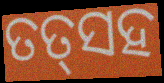
ତତ୍‌ସହ